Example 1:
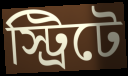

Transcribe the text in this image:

স্ট্রিটে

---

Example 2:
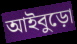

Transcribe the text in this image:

আইবুড়ো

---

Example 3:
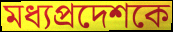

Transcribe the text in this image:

মধ্যপ্রদেশকে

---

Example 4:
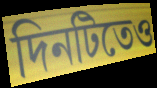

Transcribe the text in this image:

দিনটিতেও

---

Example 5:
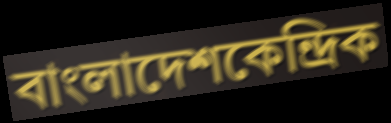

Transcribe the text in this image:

বাংলাদেশকেন্দ্রিক